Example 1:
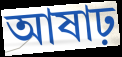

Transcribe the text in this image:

আষাঢ়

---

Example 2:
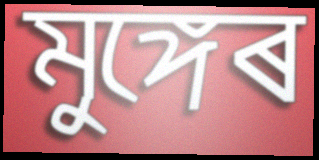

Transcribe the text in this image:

মুঙ্গেৰ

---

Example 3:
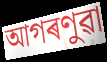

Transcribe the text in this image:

আগৰণুৱা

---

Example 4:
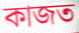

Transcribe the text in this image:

কাজত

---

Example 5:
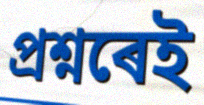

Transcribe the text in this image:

প্ৰশ্নৰেই